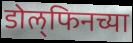
डोल्फिनच्या